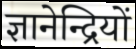
ज्ञानेन्द्रियों